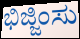
ಭಿಜ್ಜಿಂಸು